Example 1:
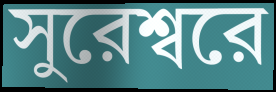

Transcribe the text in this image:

সুরেশ্বরে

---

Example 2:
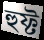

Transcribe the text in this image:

হুফ্ট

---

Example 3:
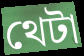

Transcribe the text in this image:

থেটা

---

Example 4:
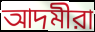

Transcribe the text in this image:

আদমীরা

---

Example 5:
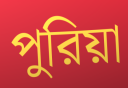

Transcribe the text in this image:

পুরিয়া